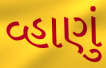
વ્હાણું